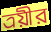
ত্রয়ীর